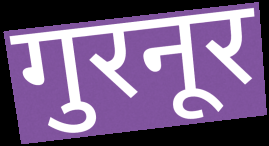
गुरनूर